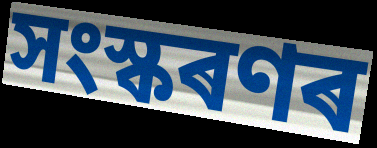
সংস্কৰণৰ